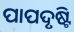
ପାପଦୃଷ୍ଟି